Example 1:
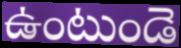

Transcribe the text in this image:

ఉంటుండె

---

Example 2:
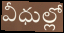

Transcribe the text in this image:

వీధుల్లో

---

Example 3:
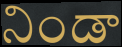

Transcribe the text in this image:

నిండా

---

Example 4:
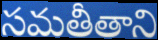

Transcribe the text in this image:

సమతీతాని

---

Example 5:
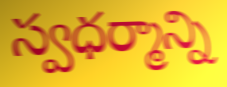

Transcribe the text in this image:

స్వధర్మాన్ని